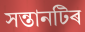
সন্তানটিৰ